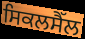
ਸਿਕਲਸੈੱਲ